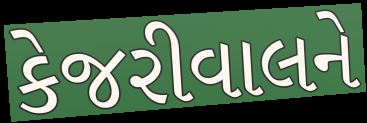
કેજરીવાલને